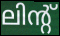
ലിന്റ്